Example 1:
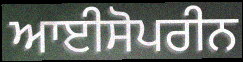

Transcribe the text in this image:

ਆਈਸੋਪਰੀਨ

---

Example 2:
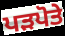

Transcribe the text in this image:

ਪੜਪੋਤੇ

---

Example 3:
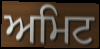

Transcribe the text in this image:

ਅਮਿਟ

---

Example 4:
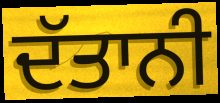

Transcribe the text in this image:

ਦੱਤਾਨੀ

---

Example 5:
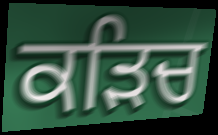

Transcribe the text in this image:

ਕੜਿਚ